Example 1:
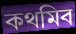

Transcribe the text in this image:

কথমিব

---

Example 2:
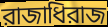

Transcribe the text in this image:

রাজাধিরাজ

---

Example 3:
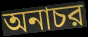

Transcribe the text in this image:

অনাচর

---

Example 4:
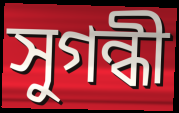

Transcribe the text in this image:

সুগন্ধী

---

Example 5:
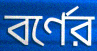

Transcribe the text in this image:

বর্ণের